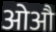
ओऔ